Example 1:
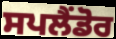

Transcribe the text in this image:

ਸਪਲੈਂਡੋਰ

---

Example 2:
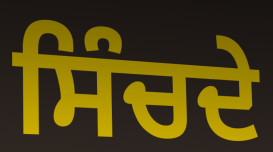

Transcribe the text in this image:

ਸਿੰਚਦੇ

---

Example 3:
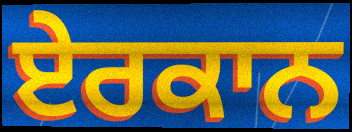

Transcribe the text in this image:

ਏਰਕਾਨ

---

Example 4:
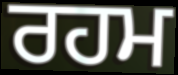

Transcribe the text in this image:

ਰਹਮ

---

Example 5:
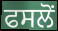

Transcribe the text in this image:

ਫਸਲੋਂ